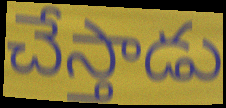
చేస్తాడు